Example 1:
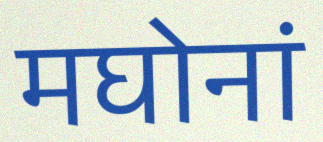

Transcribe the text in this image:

मघोनां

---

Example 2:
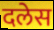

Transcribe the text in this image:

दलेस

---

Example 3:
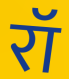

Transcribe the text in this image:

रॉ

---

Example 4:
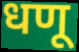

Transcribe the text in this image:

धणू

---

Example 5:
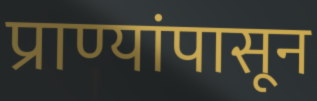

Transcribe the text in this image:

प्राण्यांपासून